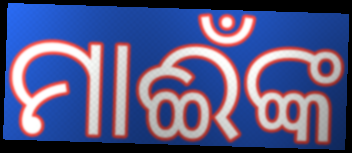
ମାଈଁଙ୍କ